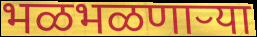
भळभळणाऱ्या